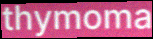
thymoma